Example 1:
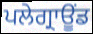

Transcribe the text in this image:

ਪਲੇਗ੍ਰਾਊਂਡ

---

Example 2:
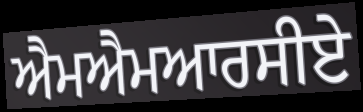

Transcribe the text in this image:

ਐਮਐਮਆਰਸੀਏ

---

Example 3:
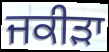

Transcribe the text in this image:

ਜਕੀੜਾ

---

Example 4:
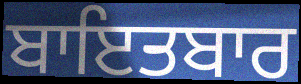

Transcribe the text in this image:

ਬਾਇਤਬਾਰ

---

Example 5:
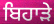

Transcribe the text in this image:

ਬਿਹਾੜੇ